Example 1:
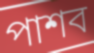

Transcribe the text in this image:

পাশব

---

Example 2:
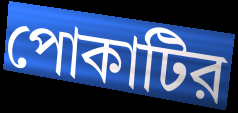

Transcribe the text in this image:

পোকাটির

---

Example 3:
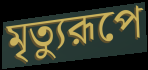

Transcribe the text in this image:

মৃত্যুরূপে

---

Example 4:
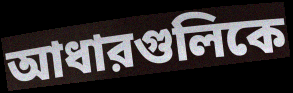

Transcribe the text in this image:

আধারগুলিকে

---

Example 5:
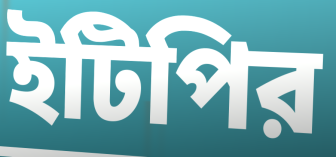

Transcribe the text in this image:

ইটিপির